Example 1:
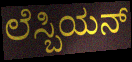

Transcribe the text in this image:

ಲೆಸ್ಬಿಯನ್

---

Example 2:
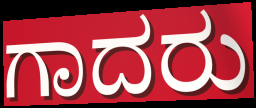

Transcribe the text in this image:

ಗಾದರು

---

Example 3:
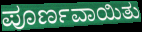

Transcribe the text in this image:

ಪೂರ್ಣವಾಯಿತು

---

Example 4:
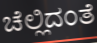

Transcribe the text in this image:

ಚೆಲ್ಲಿದಂತೆ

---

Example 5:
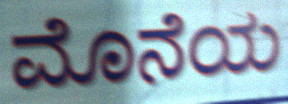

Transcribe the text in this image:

ಮೊನೆಯ